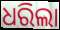
ଧରିଲା